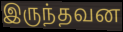
இருந்தவன